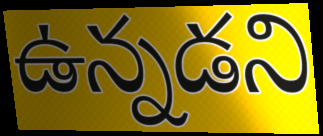
ఉన్నడని